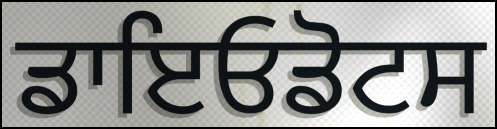
ਡਾਇਓਡੋਟਸ